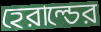
হেরাল্ডের